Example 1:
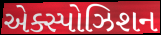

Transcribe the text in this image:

એક્સ્પોઝિશન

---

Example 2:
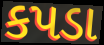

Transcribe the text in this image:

કપડા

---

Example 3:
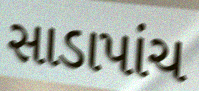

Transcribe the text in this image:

સાડાપાંચ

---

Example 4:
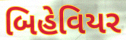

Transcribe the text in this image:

બિહેવિયર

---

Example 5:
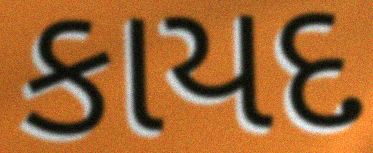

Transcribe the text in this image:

કાયદ